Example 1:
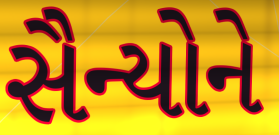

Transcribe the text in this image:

સૈન્યોને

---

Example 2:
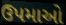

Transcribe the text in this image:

ઉપમાઓ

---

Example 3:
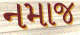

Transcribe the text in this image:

નમાજ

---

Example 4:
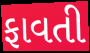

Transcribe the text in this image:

ફાવતી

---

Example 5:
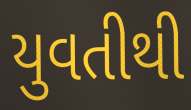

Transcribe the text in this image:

યુવતીથી